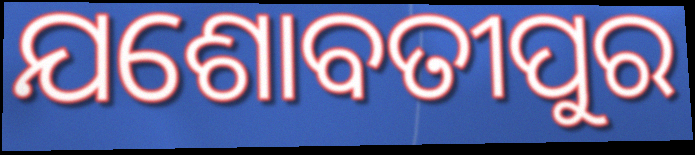
ଯଶୋବତୀପୁର